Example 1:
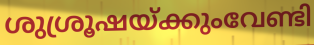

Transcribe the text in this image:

ശുശ്രൂഷയ്ക്കുംവേണ്ടി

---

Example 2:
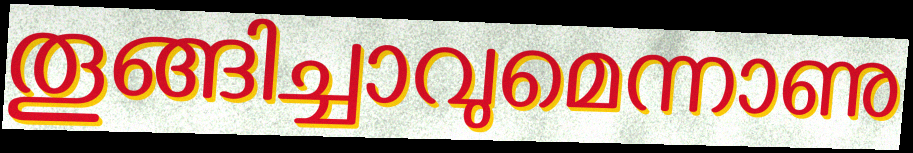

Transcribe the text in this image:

തൂങ്ങിച്ചാവുമെന്നാണു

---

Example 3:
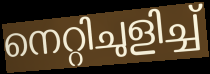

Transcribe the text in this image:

നെറ്റിചുളിച്ച്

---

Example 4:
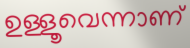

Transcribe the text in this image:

ഉള്ളൂവെന്നാണ്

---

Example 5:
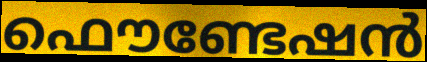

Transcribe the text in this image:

ഫൌണ്ടേഷൻ